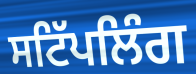
ਸਟਿੱਪਲਿੰਗ